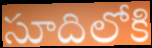
సూదిలోకి